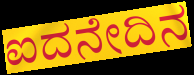
ಐದನೇದಿನ